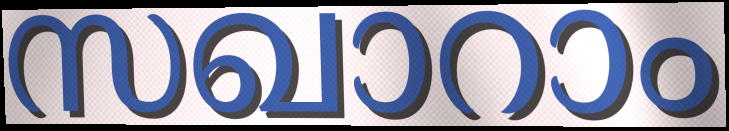
സഖാറാം